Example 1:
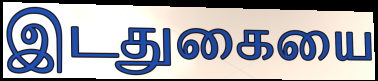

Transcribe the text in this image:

இடதுகையை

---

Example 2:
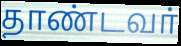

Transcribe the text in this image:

தாண்டவர்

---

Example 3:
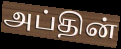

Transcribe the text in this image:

அப்தின்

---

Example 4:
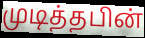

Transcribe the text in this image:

முடித்தபின்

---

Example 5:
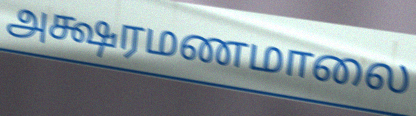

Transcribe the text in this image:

அக்ஷரமணமாலை